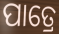
ପାତ୍ରେ